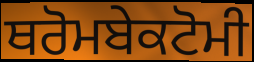
ਥਰੋਮਬੇਕਟੋਮੀ